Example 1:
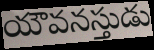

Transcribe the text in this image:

యౌవనస్తుడు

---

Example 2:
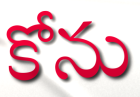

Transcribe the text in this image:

కోను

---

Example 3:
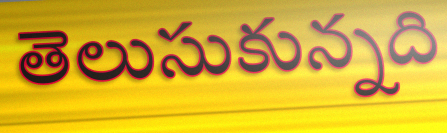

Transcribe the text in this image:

తెలుసుకున్నది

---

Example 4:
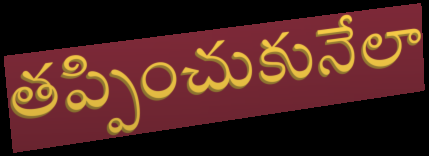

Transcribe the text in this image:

తప్పించుకునేలా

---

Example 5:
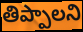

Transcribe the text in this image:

తిప్పాలని